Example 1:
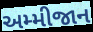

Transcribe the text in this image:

અમ્મીજાન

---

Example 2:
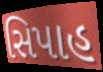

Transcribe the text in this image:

સિપાહ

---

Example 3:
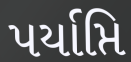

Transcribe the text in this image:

પર્યાપ્તિ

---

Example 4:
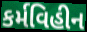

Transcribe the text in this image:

કર્મવિહીન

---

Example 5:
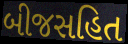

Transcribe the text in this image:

બીજસહિત